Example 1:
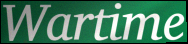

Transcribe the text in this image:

Wartime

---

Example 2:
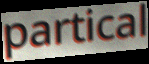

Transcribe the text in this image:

partical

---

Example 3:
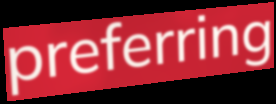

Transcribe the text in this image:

preferring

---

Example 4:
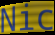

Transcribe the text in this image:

Nic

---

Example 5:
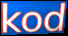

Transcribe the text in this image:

kod